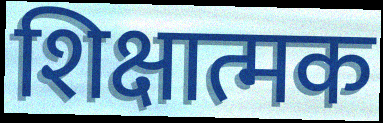
शिक्षात्मक